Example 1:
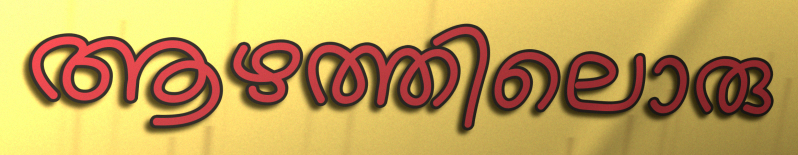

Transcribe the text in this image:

ആഴത്തിലൊരു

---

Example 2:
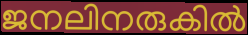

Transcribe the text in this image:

ജനലിനരുകിൽ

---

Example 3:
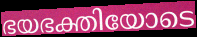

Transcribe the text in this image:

ഭയഭക്തിയോടെ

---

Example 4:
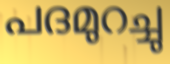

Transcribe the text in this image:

പദമുറച്ചു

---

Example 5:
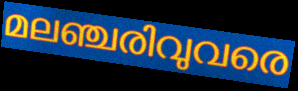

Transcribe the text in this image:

മലഞ്ചരിവുവരെ